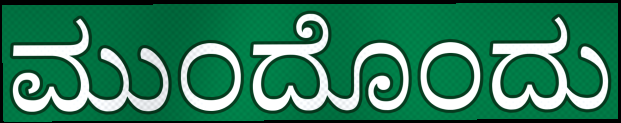
ಮುಂದೊಂದು